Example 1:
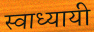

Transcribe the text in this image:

स्वाध्यायी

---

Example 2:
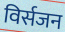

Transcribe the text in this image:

विर्सजन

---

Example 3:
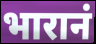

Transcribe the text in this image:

भारानं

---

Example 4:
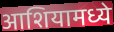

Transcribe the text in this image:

आशियामध्ये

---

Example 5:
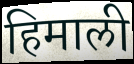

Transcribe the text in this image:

हिमाली